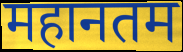
महानतम